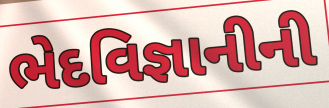
ભેદવિજ્ઞાનીની